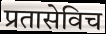
प्रतासेविच